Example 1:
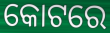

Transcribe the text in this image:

କୋଟରେ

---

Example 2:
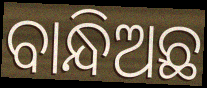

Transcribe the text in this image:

ବାନ୍ଧିଅଛ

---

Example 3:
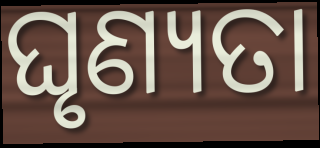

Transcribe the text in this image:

ଘୃଣ୍ୟତା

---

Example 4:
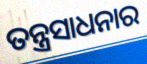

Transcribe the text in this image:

ତନ୍ତ୍ରସାଧନାର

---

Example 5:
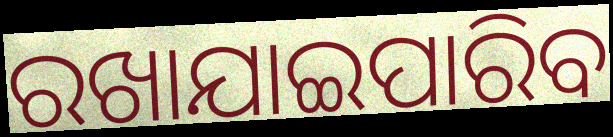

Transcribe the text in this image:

ରଖାଯାଇପାରିବ